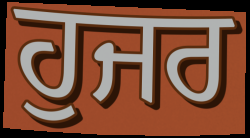
ਹੁਜਰ